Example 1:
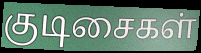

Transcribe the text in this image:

குடிசைகள்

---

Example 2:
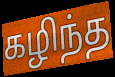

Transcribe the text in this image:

கழிந்த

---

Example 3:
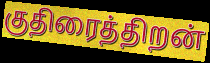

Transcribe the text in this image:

குதிரைத்திறன்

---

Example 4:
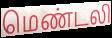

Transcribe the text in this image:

மெண்டலி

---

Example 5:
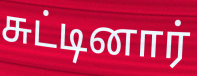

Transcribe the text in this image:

சுட்டினார்